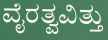
ವೈರತ್ವವಿತ್ತು